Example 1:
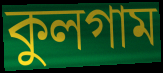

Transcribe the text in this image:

কুলগাম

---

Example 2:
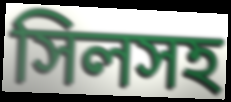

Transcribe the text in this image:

সিলসহ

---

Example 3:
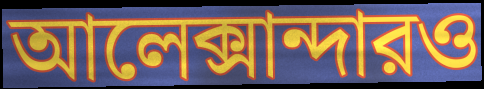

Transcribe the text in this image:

আলেক্সান্দারও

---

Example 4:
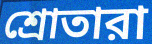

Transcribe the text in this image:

শ্রোতারা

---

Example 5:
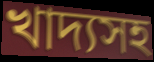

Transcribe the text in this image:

খাদ্যসহ